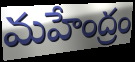
మహేంద్రం